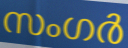
സംഗർ